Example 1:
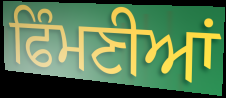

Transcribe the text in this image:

ਫਿੰਮਣੀਆਂ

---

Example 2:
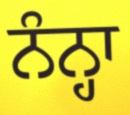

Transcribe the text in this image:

ਨੰਨ੍ਹਾ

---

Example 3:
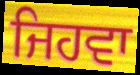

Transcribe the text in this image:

ਜਿਹਵਾ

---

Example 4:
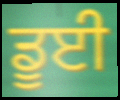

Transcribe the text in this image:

ਡੂਈ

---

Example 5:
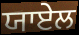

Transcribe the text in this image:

ਯਾਏਲ